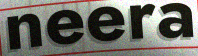
neera